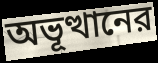
অভূত্থানের